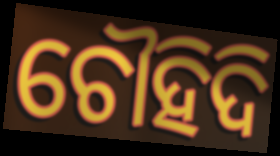
ଚୌହିଦି